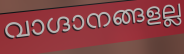
വാഗ്ദാനങ്ങളല്ല